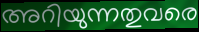
അറിയുന്നതുവരെ